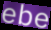
ebe